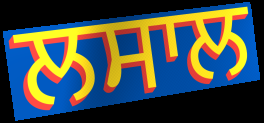
ਲਸਾਲ